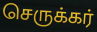
செருக்கர்